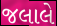
જલાલે